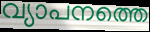
വ്യാപനത്തെ